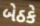
બેઠકે